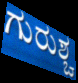
ಗುರುಶ್ಚ